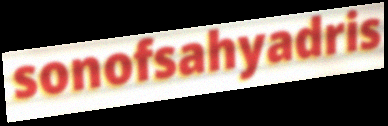
sonofsahyadris